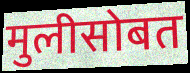
मुलीसोबत